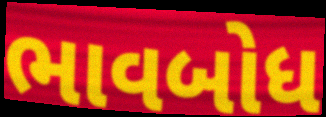
ભાવબોધ